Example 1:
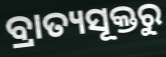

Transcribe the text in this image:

ବ୍ରାତ୍ୟସୂକ୍ତରୁ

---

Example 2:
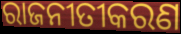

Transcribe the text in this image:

ରାଜନୀତୀକରଣ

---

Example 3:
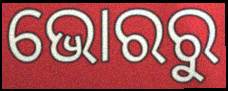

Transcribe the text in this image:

ଭୋରରୁ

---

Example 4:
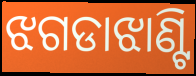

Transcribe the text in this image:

ଝଗଡାଝାଣ୍ଟି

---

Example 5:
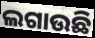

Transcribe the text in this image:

ଲଗାଉଛି